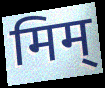
मिम्